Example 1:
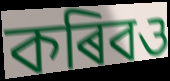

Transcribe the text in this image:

কৰিবও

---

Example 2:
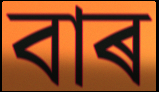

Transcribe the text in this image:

বাৰ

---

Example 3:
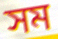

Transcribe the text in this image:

সম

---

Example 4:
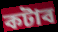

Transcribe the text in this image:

কটাব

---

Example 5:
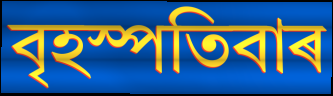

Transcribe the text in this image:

বৃহস্পতিবাৰ